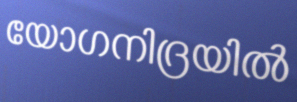
യോഗനിദ്രയിൽ